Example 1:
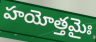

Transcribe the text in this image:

హయోత్తమైః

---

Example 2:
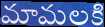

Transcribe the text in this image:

మామలకి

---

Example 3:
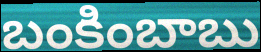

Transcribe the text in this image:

బంకింబాబు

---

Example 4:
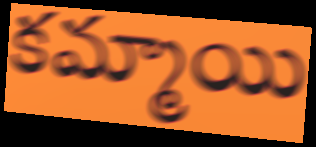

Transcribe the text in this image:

కమ్మాయి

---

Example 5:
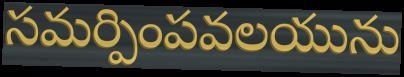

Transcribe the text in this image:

సమర్పింపవలయును